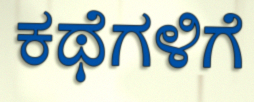
ಕಥೆಗಳಿಗೆ